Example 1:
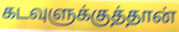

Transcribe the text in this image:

கடவுளுக்குத்தான்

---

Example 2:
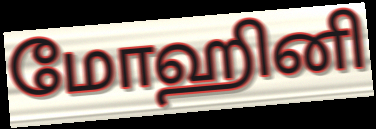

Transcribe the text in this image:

மோஹினி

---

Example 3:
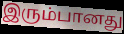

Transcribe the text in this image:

இரும்பானது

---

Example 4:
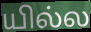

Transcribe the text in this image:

யில்ல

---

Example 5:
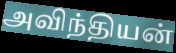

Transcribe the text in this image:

அவிந்தியன்